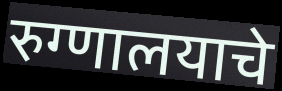
रुग्णालयाचे